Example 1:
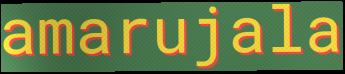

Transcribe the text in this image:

amarujala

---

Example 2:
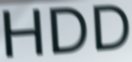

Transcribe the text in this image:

HDD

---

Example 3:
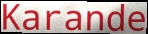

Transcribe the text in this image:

Karande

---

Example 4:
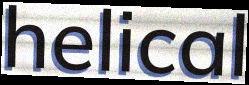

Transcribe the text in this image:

helical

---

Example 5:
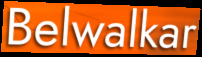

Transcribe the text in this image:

Belwalkar